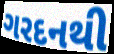
ગરદનથી